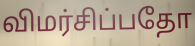
விமர்சிப்பதோ